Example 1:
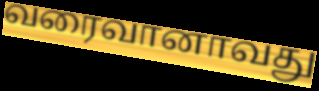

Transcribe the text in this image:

வரைவானாவது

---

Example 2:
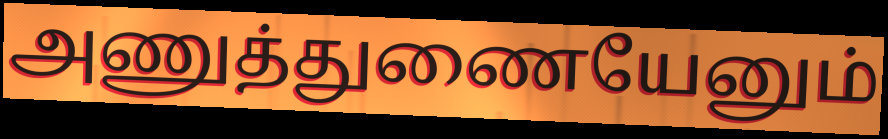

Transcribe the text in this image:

அணுத்துணையேனும்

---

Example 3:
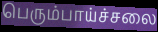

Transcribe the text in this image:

பெரும்பாய்ச்சலை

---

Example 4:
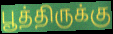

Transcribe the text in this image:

பூத்திருக்கு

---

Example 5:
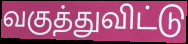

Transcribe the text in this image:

வகுத்துவிட்டு